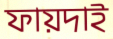
ফায়দাই